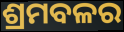
ଶ୍ରମବଳର